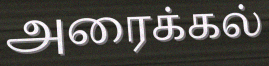
அரைக்கல்